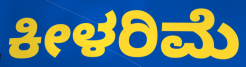
ಕೀಳರಿಮೆ